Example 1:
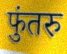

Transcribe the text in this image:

फुंतरु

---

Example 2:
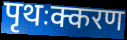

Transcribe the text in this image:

पृथःक्करण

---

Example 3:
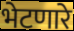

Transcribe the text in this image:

भेटणारे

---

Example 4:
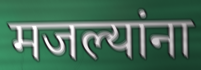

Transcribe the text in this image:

मजल्यांना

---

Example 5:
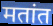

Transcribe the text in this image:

मतांत